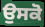
ਉਸਕੋ